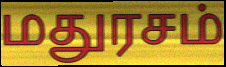
மதுரசம்